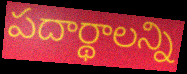
పదార్థాలన్ని